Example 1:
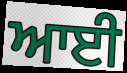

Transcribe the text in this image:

ਆਈ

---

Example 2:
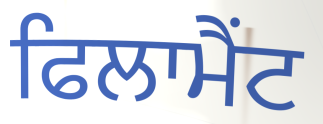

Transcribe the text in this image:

ਫਿਲਾਮੈਂਟ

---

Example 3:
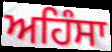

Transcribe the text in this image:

ਅਹਿੰਸਾ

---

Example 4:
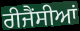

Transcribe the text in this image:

ਰੀਜੈਂਸੀਆਂ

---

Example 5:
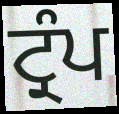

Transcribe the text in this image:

ਟ੍ਰੰਪ